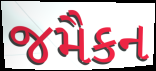
જમૈકન